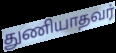
துணியாதவர்